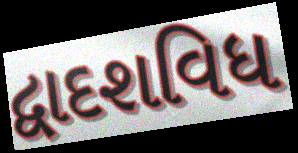
દ્વાદશવિધ